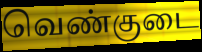
வெண்குடை